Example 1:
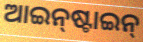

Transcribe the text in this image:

ଆଇନ୍‌ଷ୍ଟାଇନ୍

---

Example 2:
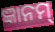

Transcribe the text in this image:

ଜ୍ଞାନମ୍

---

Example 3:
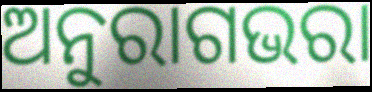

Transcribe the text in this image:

ଅନୁରାଗଭରା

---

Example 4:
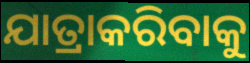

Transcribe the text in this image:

ଯାତ୍ରାକରିବାକୁ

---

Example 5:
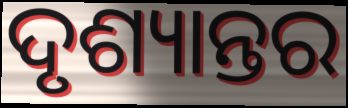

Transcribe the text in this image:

ଦୃଶ୍ୟାନ୍ତର